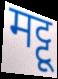
मट्टू